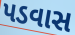
પડવાસ